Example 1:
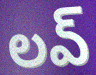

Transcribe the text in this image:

లవ్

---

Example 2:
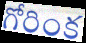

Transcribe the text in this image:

గోరింక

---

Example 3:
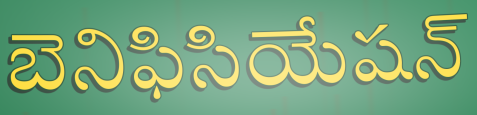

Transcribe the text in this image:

బెనిఫిసియేషన్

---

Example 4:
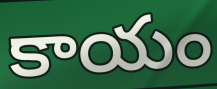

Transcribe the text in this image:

కాయం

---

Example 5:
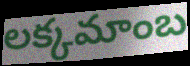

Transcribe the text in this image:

లక్కమాంబ